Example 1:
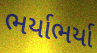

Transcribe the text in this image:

ભર્યાભર્યા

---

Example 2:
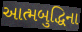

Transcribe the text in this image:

આત્મબુદ્ધિના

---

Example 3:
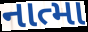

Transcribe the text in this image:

નાત્મા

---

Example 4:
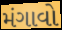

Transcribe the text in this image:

મંગાવો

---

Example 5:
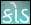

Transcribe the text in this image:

કોડ